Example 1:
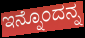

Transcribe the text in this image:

ಇನ್ನೊಂದನ್ನ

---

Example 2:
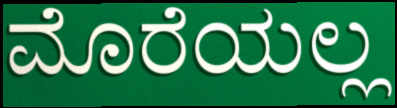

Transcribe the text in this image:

ಮೊರೆಯಲ್ಲ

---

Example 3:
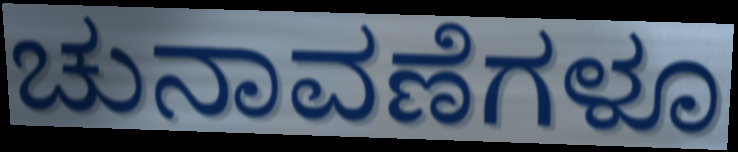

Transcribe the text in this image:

ಚುನಾವಣೆಗಳೂ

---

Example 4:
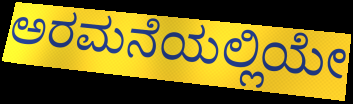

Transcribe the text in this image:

ಅರಮನೆಯಲ್ಲಿಯೇ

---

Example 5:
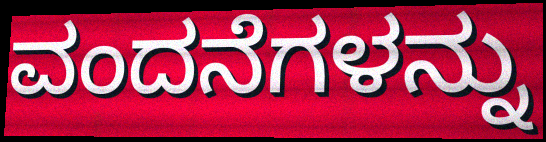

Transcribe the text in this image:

ವಂದನೆಗಳನ್ನು